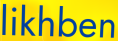
likhben